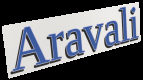
Aravali